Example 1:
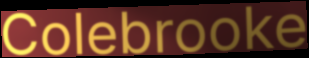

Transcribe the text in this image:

Colebrooke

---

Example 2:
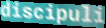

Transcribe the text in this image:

discipuli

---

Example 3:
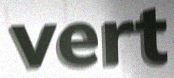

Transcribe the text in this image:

vert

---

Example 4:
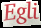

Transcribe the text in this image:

Egli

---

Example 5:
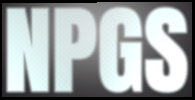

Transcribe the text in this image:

NPGS